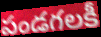
పండగలకీ